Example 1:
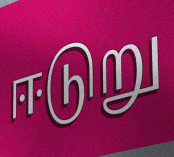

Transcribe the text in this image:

ஈடுறு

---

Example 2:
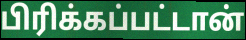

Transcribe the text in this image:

பிரிக்கப்பட்டான்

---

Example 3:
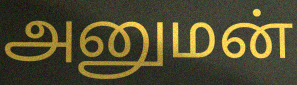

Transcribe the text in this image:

அனுமன்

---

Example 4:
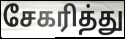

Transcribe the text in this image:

சேகரித்து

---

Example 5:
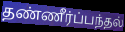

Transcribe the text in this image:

தண்ணீர்ப்பந்தல்